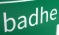
badhe